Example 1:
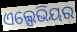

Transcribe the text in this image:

ଏଲ୍ସେଭିୟର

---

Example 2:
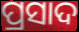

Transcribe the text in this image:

ପ୍ରସାଦ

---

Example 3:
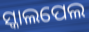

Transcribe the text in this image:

ସ୍କାଲପେଲ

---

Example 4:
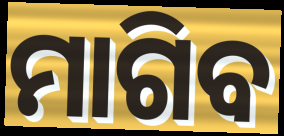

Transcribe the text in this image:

ମାଗିବ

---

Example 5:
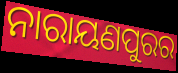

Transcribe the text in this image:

ନାରାୟଣପୁରର